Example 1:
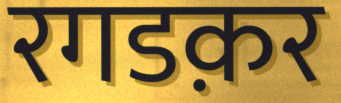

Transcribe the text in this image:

रगडक़र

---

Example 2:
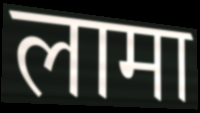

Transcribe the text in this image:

लामा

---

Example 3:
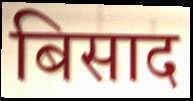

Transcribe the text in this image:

बिसाद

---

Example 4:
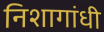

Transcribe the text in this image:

निशागांधी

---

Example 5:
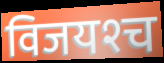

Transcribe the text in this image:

विजयश्च